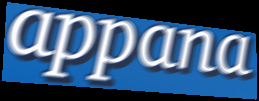
appana